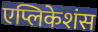
एप्लिकेशंस